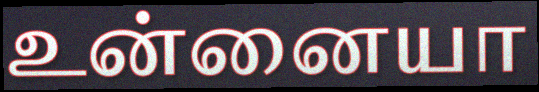
உன்னையா